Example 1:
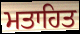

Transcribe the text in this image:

ਮਤਾਹਿਤ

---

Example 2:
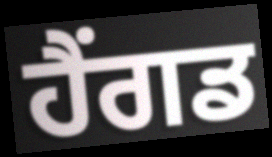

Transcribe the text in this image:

ਹੈਂਗਡ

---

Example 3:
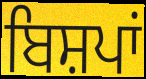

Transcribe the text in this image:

ਬਿਸ਼ਪਾਂ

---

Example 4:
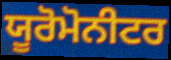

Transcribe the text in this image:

ਯੂਰੋਮੋਨੀਟਰ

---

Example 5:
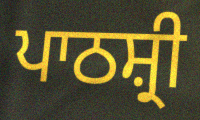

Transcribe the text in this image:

ਪਾਠਸ਼੍ਰੀ